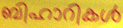
ബിഹാറികൾ